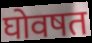
घोवषत